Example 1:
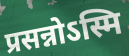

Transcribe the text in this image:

प्रसन्नोऽस्मि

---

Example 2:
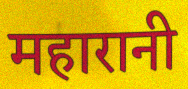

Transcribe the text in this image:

महारानी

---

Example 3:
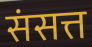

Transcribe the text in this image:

संसत्त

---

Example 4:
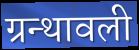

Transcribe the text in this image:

ग्रन्थावली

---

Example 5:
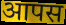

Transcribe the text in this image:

आपस